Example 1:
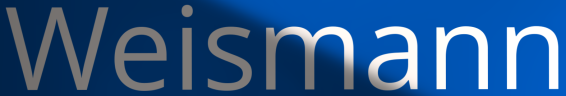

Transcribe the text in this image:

Weismann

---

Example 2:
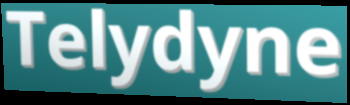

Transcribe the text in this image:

Telydyne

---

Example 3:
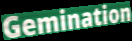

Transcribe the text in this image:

Gemination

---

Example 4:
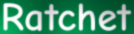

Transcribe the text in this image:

Ratchet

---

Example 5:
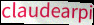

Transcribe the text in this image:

claudearpi